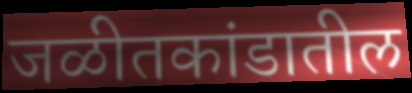
जळीतकांडातील